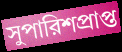
সুপারিশপ্রাপ্ত